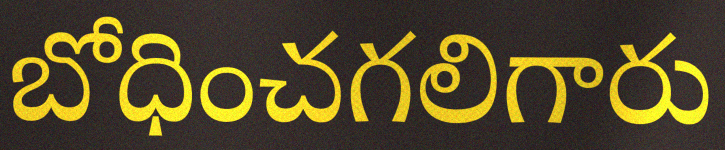
బోధించగలిగారు